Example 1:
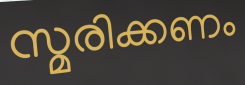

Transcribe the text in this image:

സ്മരിക്കണം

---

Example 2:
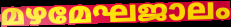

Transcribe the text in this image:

മഴമേഘജാലം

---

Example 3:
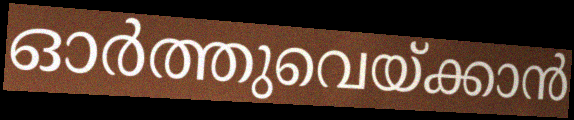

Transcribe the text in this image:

ഓർത്തുവെയ്ക്കാൻ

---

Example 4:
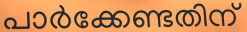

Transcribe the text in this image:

പാർക്കേണ്ടതിന്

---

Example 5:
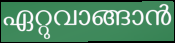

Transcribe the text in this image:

ഏറ്റുവാങ്ങാൻ